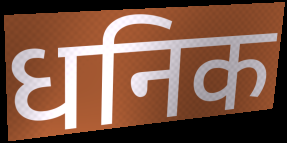
धनिक